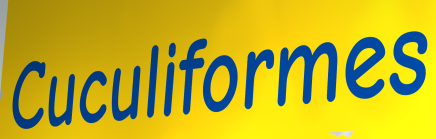
Cuculiformes